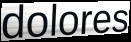
dolores